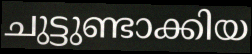
ചുട്ടുണ്ടാക്കിയ